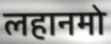
लहानमो